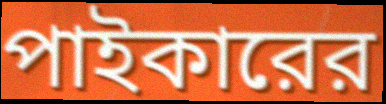
পাইকারের